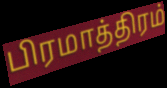
பிரமாத்திரம்